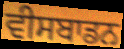
ਵੀਸਬਾਡਨ